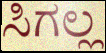
ಸಿಗಲ್ಲ